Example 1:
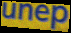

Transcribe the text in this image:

unep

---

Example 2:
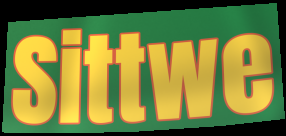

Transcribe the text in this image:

Sittwe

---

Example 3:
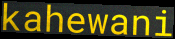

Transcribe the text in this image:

kahewani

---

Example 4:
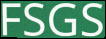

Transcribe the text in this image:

FSGS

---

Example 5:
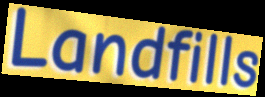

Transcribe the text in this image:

Landfills